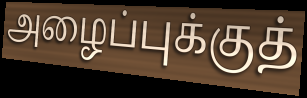
அழைப்புக்குத்